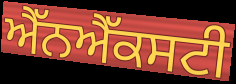
ਐੱਨਐੱਕਸਟੀ